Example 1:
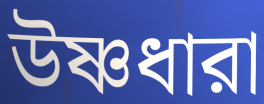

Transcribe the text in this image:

উষ্ণধারা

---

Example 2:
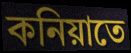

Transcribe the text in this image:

কনিয়াতে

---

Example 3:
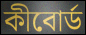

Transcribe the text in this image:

কীবোর্ড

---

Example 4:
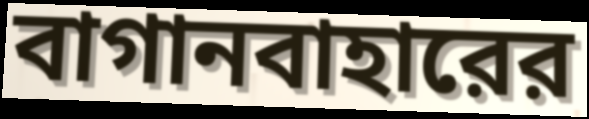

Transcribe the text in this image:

বাগানবাহারের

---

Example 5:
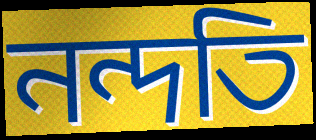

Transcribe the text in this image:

নন্দতি